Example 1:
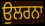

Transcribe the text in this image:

ਉਲਰਨਾ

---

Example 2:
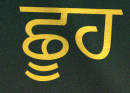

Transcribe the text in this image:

ਛੂਹ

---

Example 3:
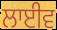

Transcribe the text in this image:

ਲਾਈਵ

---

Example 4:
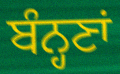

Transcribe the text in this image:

ਬੰਨ੍ਹਣਾਂ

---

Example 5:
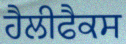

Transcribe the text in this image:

ਹੈਲੀਫੈਕਸ